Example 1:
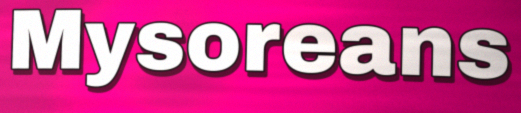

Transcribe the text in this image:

Mysoreans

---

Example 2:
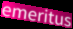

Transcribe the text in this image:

emeritus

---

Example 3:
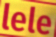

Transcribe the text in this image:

lele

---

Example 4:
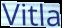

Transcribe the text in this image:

Vitla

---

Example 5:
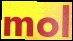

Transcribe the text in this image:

mol